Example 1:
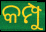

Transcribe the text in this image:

କମ୍ପୁ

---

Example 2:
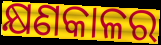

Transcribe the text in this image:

କ୍ଷଣକାଳର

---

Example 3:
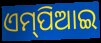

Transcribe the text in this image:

ଏମ୍‌ପିଆଇ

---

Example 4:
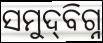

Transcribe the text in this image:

ସମୁଦ୍‌ବିଗ୍ନ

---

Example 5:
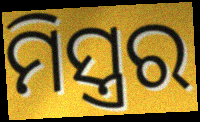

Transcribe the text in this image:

ମିସ୍ତ୍ରର